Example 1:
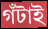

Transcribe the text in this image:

গঁটাই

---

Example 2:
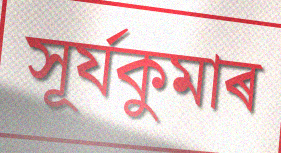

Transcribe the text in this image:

সূৰ্যকুমাৰ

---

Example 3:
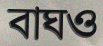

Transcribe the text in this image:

বাঘও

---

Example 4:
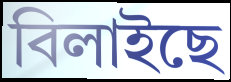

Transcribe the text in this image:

বিলাইছে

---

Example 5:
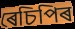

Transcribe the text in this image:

ৰেচিপিৰ